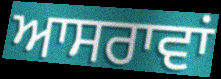
ਆਸਰਾਵਾਂ